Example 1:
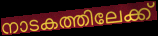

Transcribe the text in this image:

നാടകത്തിലേക്ക്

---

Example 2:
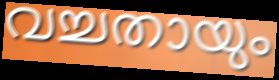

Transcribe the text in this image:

വച്ചതായും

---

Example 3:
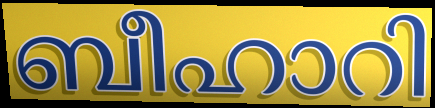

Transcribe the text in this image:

ബീഹാറി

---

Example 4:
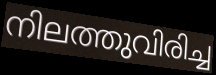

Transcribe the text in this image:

നിലത്തുവിരിച്ച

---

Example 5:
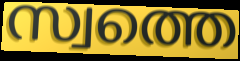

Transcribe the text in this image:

സ്വത്തെ